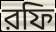
রফি